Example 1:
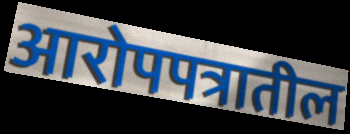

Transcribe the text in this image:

आरोपपत्रातील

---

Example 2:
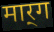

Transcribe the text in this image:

मार्ग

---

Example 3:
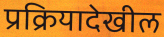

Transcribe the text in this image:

प्रक्रियादेखील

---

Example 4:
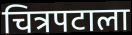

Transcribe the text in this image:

चित्रपटाला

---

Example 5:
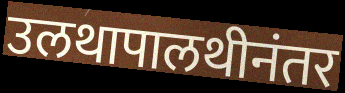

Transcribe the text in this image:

उलथापालथीनंतर